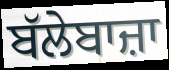
ਬੱਲੇਬਾਜ਼ਾ